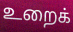
உறைக்